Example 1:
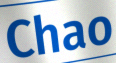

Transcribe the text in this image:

Chao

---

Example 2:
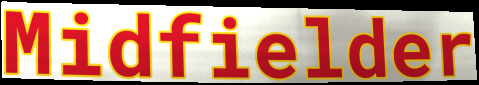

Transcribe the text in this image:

Midfielder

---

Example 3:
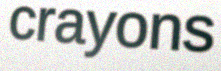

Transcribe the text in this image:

crayons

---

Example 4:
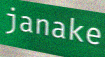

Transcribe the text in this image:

janake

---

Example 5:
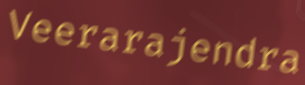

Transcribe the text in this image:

Veerarajendra